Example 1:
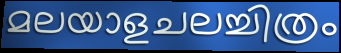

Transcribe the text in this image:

മലയാളചലച്ചിത്രം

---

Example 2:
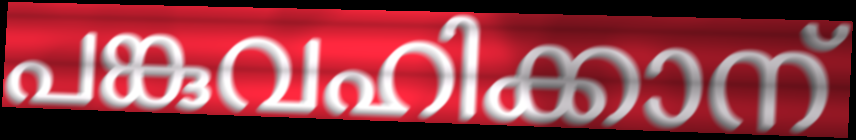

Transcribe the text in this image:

പങ്കുവഹിക്കാന്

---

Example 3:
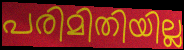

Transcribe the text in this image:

പരിമിതിയില്ല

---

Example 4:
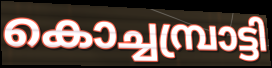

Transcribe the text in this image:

കൊച്ചമ്പ്രാട്ടി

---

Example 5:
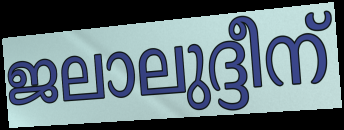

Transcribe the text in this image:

ജലാലുദ്ദീന്